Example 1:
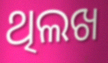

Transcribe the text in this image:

ଥିଲଖ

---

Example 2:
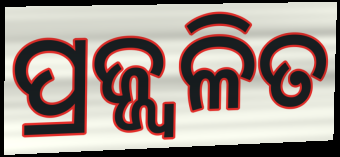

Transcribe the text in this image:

ପ୍ରଜ୍ଜ୍ବଳିତ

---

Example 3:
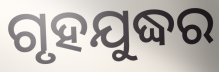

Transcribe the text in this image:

ଗୃହଯୁଦ୍ଧର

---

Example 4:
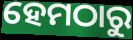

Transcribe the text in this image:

ହେମଠାରୁ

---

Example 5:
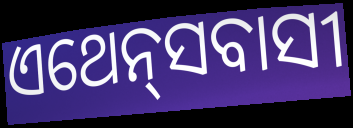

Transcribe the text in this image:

ଏଥେନ୍‌ସବାସୀ